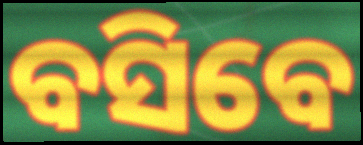
ବସିବେ